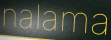
nalama